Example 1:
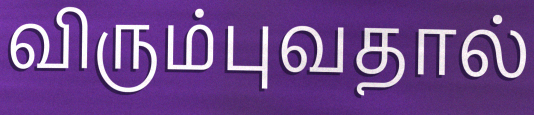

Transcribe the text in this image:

விரும்புவதால்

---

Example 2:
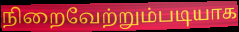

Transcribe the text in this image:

நிறைவேற்றும்படியாக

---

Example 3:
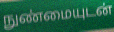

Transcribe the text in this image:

நுண்மையுடன்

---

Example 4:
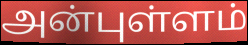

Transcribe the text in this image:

அன்புள்ளம்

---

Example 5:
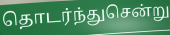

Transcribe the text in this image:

தொடர்ந்துசென்று